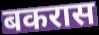
बकरास